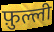
फ़ुल्ली